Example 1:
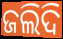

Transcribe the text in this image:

ଜଲିଦି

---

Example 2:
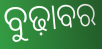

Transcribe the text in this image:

ବୁଢ଼ାବର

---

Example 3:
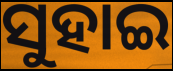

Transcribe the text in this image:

ସୁହାଇ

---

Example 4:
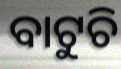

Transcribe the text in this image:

ବାଟୁଚି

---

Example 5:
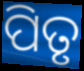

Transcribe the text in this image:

ପିତୃ